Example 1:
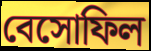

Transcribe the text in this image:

বেসোফিল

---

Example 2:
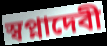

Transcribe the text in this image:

স্বপ্নাদেবী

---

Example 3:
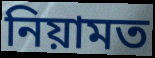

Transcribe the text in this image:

নিয়ামত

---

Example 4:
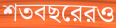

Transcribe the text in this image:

শতবছরেরও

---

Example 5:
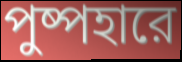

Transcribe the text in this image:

পুষ্পহারে